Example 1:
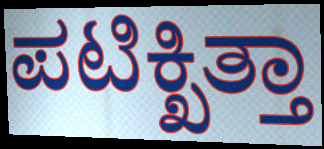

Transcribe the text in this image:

ಪಟಿಕ್ಖಿತ್ತಾ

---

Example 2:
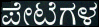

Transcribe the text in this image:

ಪೇಟೆಗಳ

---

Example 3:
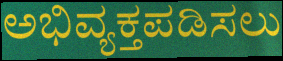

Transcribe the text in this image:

ಅಭಿವ್ಯಕ್ತಪಡಿಸಲು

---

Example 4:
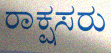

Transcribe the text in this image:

ರಾಕ್ಷಸರು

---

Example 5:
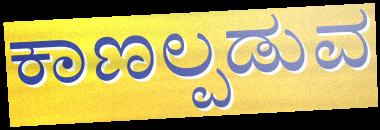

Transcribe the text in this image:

ಕಾಣಲ್ಪಡುವ